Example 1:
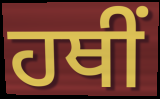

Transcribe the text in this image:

ਹਥੀਂ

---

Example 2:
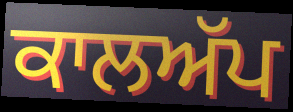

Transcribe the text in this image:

ਕਾਲਅੱਪ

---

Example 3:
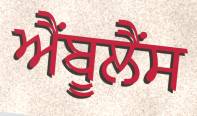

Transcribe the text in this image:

ਐੰਬੂਲੈੰਸ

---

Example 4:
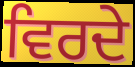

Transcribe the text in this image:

ਵਿਰਦੇ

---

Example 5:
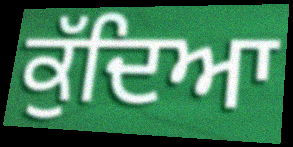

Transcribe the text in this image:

ਕੁੱਦਿਆ